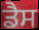
ਡੈਸ